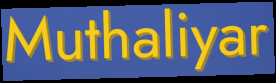
Muthaliyar